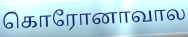
கொரோனாவால